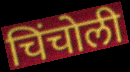
चिंचोली